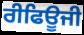
ਰੀਫਿਊਜੀ